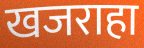
खजराहा